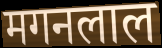
मगनलाल